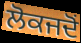
ਲੋਕਜਦੋਂ